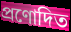
প্ৰণোদিত